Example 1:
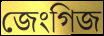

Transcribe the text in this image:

জেংগিজ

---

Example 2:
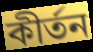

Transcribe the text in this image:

কীৰ্তন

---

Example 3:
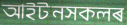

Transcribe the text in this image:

আইটনসকলৰ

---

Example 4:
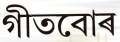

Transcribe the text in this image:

গীতবোৰ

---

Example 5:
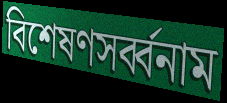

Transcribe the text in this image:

বিশেষণসৰ্ব্বনাম